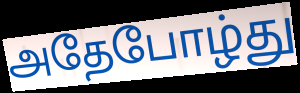
அதேபோழ்து